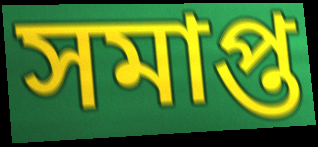
সমাপ্ত